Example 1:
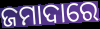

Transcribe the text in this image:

ଜମାଦାରେ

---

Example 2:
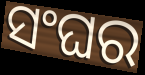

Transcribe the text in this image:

ସଂଘର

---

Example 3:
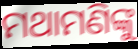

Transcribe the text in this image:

ମଥାମଣିଙ୍କୁ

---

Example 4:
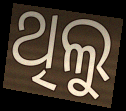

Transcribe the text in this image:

ଥିଲୁ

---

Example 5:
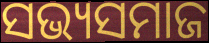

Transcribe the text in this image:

ସଭ୍ୟସମାଜ